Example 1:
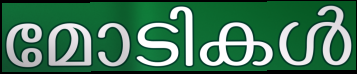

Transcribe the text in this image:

മോടികൾ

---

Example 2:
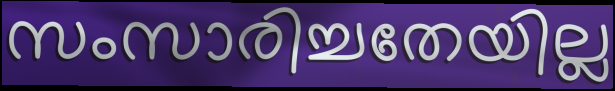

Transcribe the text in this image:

സംസാരിച്ചതേയില്ല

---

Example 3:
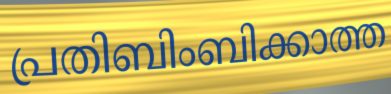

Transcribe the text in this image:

പ്രതിബിംബിക്കാത്ത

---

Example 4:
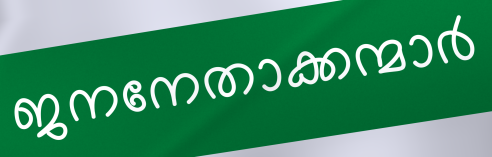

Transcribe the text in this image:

ജനനേതാക്കന്മാർ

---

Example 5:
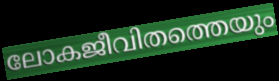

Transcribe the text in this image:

ലോകജീവിതത്തെയും